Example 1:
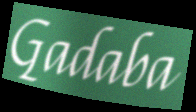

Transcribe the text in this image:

Gadaba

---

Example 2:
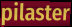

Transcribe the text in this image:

pilaster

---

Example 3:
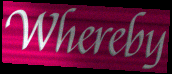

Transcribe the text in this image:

Whereby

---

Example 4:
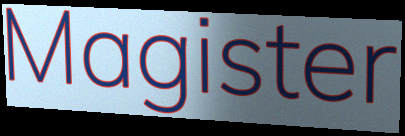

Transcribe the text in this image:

Magister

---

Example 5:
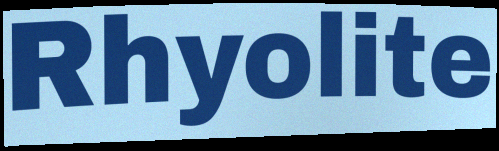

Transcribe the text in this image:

Rhyolite